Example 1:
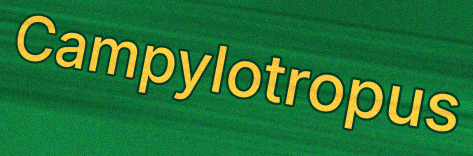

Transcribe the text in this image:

Campylotropus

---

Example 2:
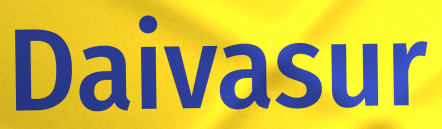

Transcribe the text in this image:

Daivasur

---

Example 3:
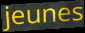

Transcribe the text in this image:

jeunes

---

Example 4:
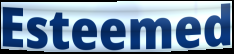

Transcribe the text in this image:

Esteemed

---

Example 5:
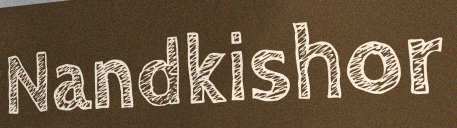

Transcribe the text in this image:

Nandkishor